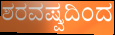
ಶರವಷ್ವದಿಂದ